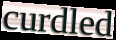
curdled